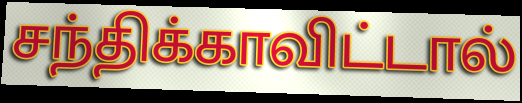
சந்திக்காவிட்டால்